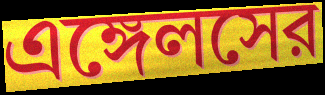
এঙ্গেলসের